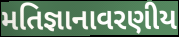
મતિજ્ઞાનાવરણીય